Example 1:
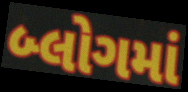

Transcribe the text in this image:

બ્લોગમાં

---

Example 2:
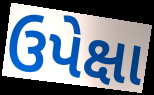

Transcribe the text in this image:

ઉપેક્ષા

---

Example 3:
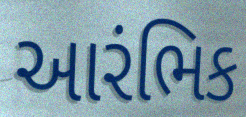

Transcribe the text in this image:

આરંભિક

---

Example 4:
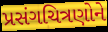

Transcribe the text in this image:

પ્રસંગચિત્રણોને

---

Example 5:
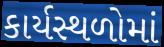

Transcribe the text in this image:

કાર્યસ્થળોમાં